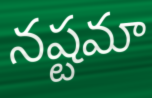
నష్టమా